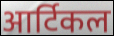
आर्टिकल